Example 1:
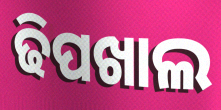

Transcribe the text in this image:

ଢିପଖାଲ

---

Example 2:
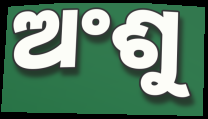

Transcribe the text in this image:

ଅଂଶୁ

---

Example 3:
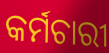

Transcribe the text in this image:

କର୍ମଚାରୀ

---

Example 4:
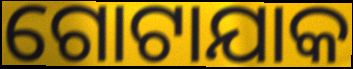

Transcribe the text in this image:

ଗୋଟାଯାକ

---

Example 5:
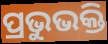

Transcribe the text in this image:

ପ୍ରଭୁଭକ୍ତି